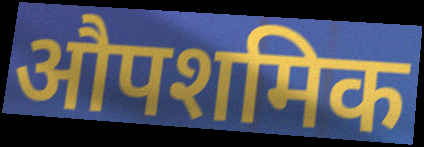
औपशमिक